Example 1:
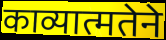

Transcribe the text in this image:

काव्यात्मतेने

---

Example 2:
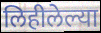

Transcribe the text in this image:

लिहीलेल्या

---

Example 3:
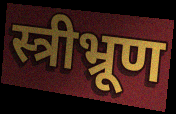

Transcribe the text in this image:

स्त्रीभ्रूण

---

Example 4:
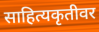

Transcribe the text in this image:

साहित्यकृतीवर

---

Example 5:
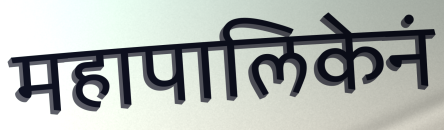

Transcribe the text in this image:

महापालिकेनं